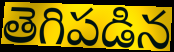
తెగిపడిన